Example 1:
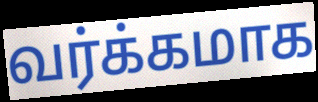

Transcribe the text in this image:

வர்க்கமாக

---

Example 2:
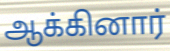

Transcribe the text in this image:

ஆக்கினார்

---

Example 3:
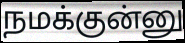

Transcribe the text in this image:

நமக்குன்னு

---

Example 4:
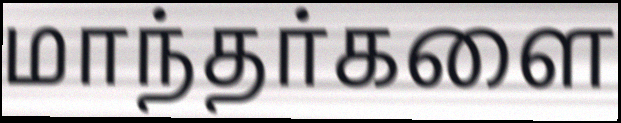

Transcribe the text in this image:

மாந்தர்களை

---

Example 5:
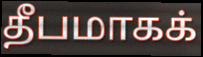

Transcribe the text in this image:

தீபமாகக்